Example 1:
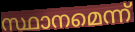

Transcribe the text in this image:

സ്ഥാനമെന്ന്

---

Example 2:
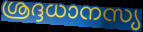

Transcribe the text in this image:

ശ്രദ്ദധാനസ്യ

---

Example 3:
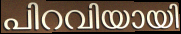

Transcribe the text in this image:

പിറവിയായി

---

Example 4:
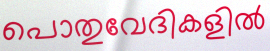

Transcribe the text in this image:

പൊതുവേദികളിൽ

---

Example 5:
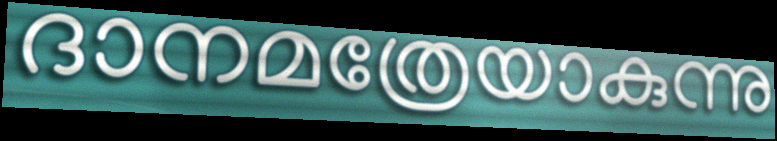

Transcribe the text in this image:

ദാനമത്രേയാകുന്നു